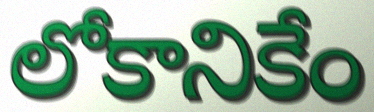
లోకానికేం